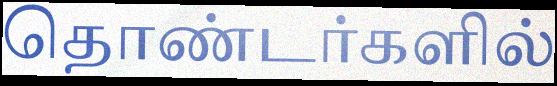
தொண்டர்களில்